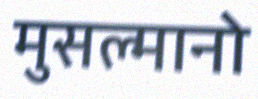
मुसल्मानो